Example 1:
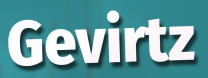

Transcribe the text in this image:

Gevirtz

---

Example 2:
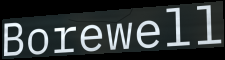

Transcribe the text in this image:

Borewell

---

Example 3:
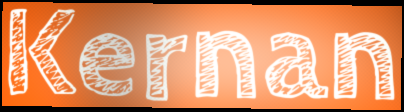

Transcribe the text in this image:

Kernan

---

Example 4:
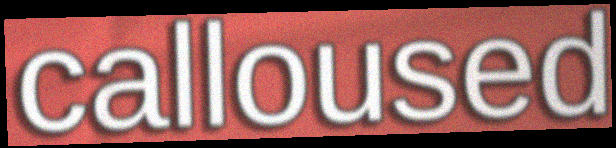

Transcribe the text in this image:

calloused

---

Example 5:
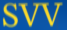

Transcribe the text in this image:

SVV